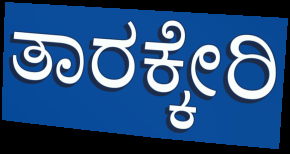
ತಾರಕ್ಕೇರಿ